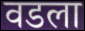
वडला